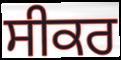
ਸੀਕਰ